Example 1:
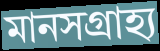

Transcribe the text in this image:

মানসগ্রাহ্য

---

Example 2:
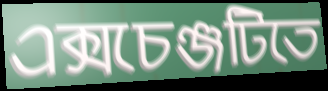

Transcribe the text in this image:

এক্সচেঞ্জটিতে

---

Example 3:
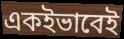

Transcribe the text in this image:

একইভাবেই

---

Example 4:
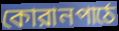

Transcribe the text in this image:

কোরানপাঠে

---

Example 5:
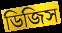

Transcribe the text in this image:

ডিজিস